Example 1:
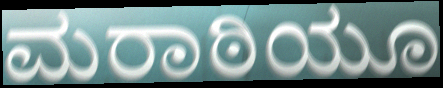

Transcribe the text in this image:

ಮರಾಠಿಯೂ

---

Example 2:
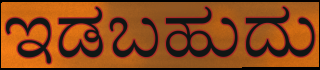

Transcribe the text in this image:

ಇಡಬಹುದು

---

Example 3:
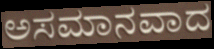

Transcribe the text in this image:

ಅಸಮಾನವಾದ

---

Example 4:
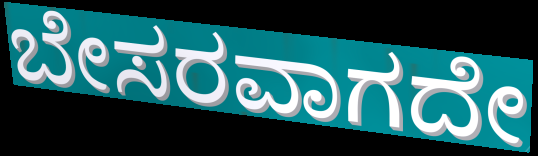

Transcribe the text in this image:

ಬೇಸರವಾಗದೇ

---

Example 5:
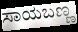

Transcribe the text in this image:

ಸಾಯಬಣ್ಣ